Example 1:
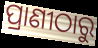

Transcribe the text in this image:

ପ୍ରାଣୀଠାରୁ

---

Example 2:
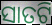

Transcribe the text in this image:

ସାତଟି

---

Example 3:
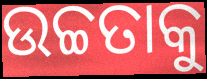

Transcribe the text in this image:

ଉଚ୍ଚତାକୁ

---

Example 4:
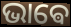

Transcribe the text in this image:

ଭାଵେ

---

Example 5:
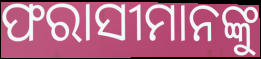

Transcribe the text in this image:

ଫରାସୀମାନଙ୍କୁ